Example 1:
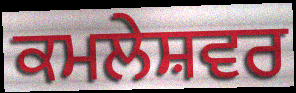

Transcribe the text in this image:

ਕਮਲੇਸ਼ਵਰ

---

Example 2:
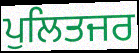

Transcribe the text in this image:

ਪੁਲਿਤਜਰ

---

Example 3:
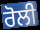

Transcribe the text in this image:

ਰੋਲੀ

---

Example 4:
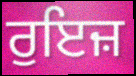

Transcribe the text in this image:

ਰੁਇਜ਼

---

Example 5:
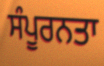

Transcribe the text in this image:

ਸੰਪੂਰਨਤਾ